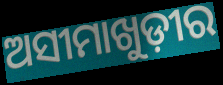
ଅସୀମାଖୁଡ଼ୀର